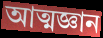
আত্মজ্ঞান